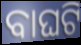
ବାଘଟି